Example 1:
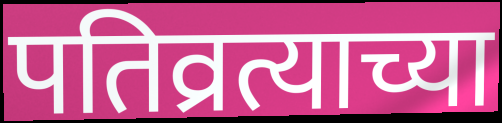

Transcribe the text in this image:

पतिव्रत्याच्या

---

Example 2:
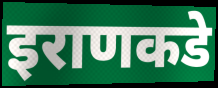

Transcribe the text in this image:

इराणकडे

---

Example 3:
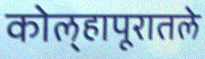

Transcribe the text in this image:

कोल्हापूरातले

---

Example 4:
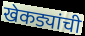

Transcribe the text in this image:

खेकड्यांची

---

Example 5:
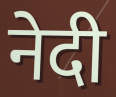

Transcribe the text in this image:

नेदी